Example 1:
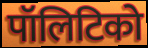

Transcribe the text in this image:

पॉलिटिको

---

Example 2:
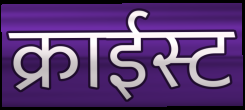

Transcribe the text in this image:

क्राईस्ट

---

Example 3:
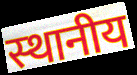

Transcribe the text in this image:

स्‍थानीय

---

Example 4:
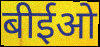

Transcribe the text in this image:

बीईओ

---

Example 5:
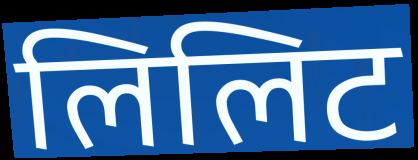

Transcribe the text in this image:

लिलिट